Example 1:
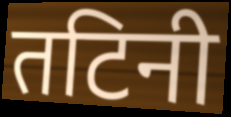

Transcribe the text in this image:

तटिनी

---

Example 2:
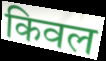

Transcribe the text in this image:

किवल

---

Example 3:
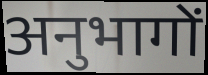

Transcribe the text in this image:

अनुभागों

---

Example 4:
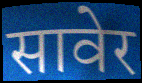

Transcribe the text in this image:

सावेर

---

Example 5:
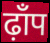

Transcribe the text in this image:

ढ़ाँप